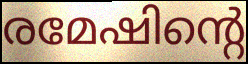
രമേഷിന്റെ